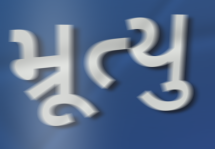
મ્રૂત્યુ